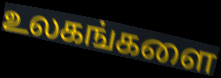
உலகங்களை